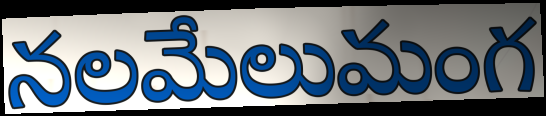
నలమేలుమంగ